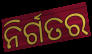
ନିର୍ଗତର